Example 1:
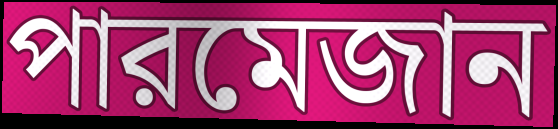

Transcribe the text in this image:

পারমেজান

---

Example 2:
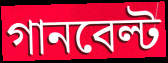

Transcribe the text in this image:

গানবেল্ট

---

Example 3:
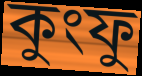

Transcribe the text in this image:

কুংফু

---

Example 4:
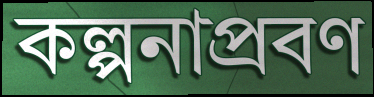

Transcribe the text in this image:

কল্পনাপ্রবণ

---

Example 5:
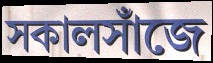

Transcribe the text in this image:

সকালসাঁজে